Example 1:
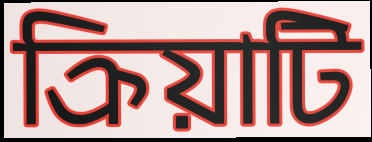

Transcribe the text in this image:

ক্রিয়াটি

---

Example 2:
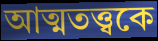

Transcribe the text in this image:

আত্মতত্ত্বকে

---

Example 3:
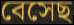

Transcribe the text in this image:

বেসেছ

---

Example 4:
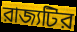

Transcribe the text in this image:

রাজ্যটির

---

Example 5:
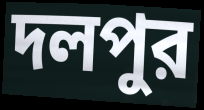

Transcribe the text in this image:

দলপুর